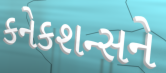
કનેકશન્સને